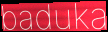
baduka